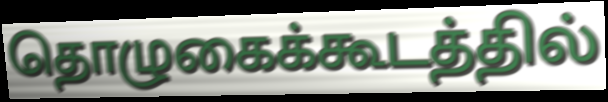
தொழுகைக்கூடத்தில்